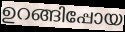
ഉറങ്ങിപ്പോയ